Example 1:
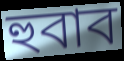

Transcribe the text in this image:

হুবাব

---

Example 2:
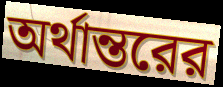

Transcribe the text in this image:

অর্থান্তরের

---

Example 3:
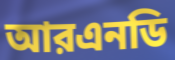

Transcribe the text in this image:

আরএনডি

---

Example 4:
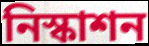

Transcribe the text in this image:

নিস্কাশন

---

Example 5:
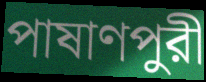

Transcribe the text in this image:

পাষাণপুরী